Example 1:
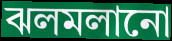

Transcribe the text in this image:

ঝলমলানো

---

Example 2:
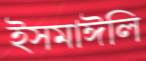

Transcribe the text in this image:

ইসমাঈলি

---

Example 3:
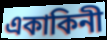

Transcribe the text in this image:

একাকিনী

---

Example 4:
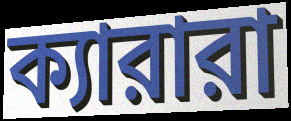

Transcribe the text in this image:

ক্যারারা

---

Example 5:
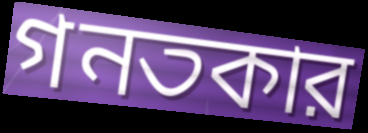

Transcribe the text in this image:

গনতকার